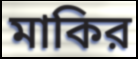
মাকির